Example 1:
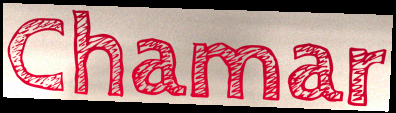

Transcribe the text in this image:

Chamar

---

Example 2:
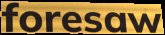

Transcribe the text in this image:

foresaw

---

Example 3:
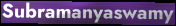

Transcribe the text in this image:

Subramanyaswamy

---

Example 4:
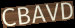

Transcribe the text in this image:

CBAVD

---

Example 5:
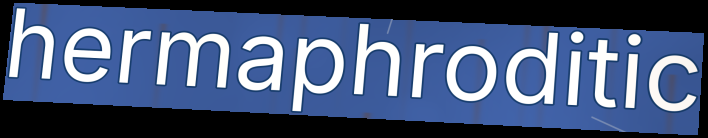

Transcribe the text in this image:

hermaphroditic